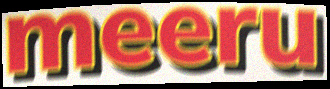
meeru